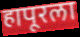
हापूरला